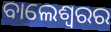
ବାଲେଶ୍ୱରର